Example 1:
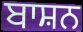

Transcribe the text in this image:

ਬਾਸ਼ਨ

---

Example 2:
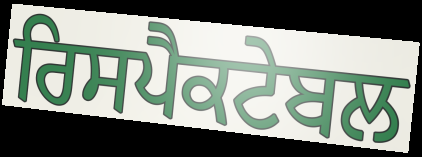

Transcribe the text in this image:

ਰਿਸਪੈਕਟੇਬਲ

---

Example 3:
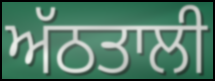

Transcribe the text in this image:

ਅੱਠਤਾਲੀ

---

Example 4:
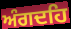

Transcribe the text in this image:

ਅੰਗਦਹਿ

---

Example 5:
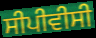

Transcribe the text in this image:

ਸੀਪੀਵੀਸੀ